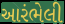
આરંભેલી